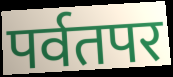
पर्वतपर